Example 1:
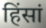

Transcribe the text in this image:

हिंसां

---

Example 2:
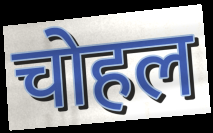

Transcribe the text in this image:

चोहल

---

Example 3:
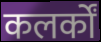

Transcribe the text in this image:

कलर्कों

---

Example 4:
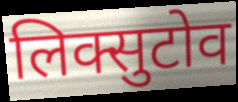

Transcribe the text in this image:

लिक्सुटोव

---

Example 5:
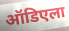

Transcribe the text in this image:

ऑडिएला